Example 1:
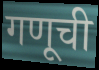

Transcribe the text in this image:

गणूची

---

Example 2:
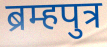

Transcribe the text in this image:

ब्रम्हपुत्र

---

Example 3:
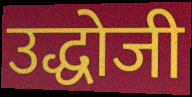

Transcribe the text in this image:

उद्धोजी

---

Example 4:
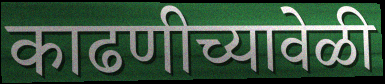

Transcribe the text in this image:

काढणीच्यावेळी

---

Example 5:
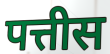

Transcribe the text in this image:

पत्तीस